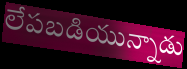
లేపబడియున్నాడు